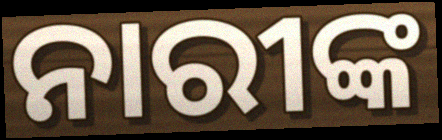
ନାରୀଙ୍କ